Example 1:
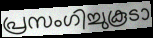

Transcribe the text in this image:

പ്രസംഗിച്ചുകൂടാ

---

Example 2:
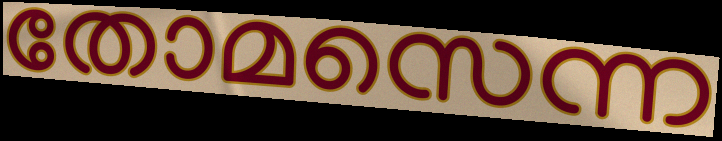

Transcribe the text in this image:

തോമസെന്ന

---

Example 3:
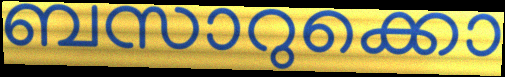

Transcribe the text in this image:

ബസാറുക്കൊ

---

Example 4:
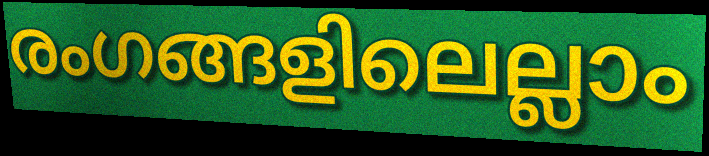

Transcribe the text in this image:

രംഗങ്ങളിലെല്ലാം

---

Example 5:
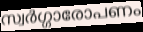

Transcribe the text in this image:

സ്വർഗ്ഗാരോപണം